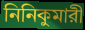
নিনিকুমারী